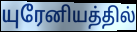
யுரேனியத்தில்